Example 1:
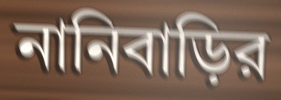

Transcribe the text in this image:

নানিবাড়ির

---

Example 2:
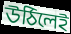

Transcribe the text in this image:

উঠিলেই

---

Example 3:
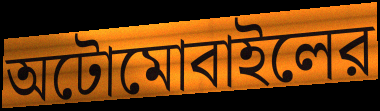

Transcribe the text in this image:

অটোমোবাইলের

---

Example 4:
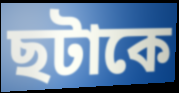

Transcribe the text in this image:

ছটাকে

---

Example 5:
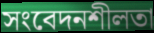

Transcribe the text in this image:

সংবেদনশীলতা